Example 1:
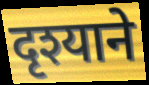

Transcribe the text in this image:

दृश्याने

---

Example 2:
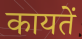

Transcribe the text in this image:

कायतें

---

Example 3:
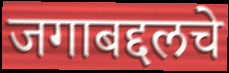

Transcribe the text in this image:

जगाबद्दलचे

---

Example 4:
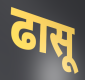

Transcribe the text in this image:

ढासू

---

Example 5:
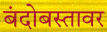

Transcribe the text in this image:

बंदोबस्तावर